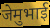
जेमुभाई